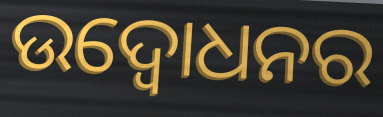
ଉଦ୍ବୋଧନର